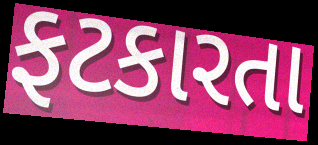
ફટકારતા